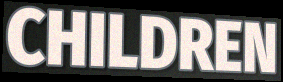
CHILDREN